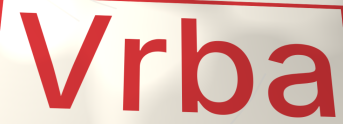
Vrba